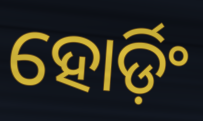
ହୋର୍ଡ଼ିଂ